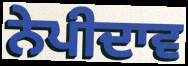
ਨੇਪੀਦਾਵ